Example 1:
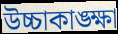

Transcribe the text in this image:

উচ্চাকাঙ্ক্ষা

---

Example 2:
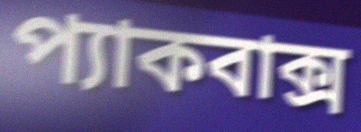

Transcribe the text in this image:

প্যাকবাক্স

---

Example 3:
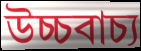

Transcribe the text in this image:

উচ্চবাচ্য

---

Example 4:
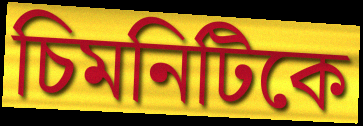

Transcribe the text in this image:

চিমনিটিকে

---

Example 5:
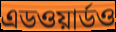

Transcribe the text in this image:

এডওয়ার্ডও